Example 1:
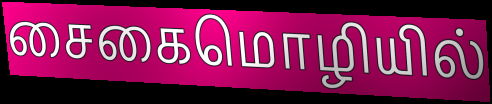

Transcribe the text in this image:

சைகைமொழியில்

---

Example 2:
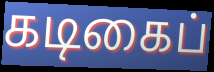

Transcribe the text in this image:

கடிகைப்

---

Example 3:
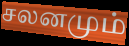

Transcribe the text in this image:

சலனமும்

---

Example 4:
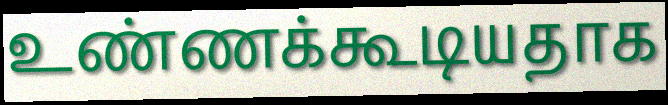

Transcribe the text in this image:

உண்ணக்கூடியதாக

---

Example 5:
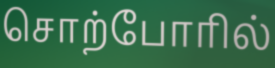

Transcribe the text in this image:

சொற்போரில்